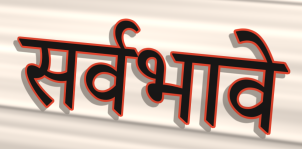
सर्वभावे